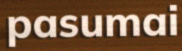
pasumai